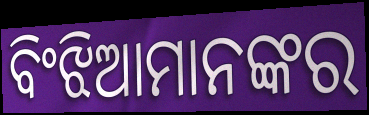
ବିଂଝିଆମାନଙ୍କର